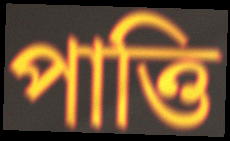
পাত্তি